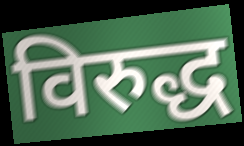
विरुद्ध